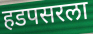
हडपसरला